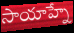
సాయాహ్నే